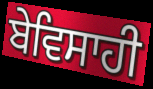
ਬੇਵਿਸਾਹੀ